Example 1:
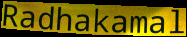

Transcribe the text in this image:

Radhakamal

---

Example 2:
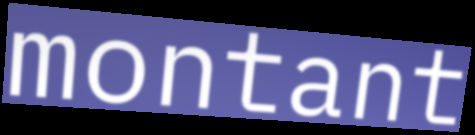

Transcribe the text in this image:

montant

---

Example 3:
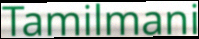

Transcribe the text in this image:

Tamilmani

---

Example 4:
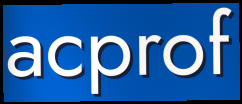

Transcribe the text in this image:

acprof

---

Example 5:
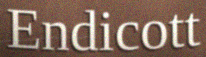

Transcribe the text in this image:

Endicott